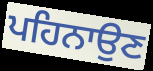
ਪਹਿਨਾਉਣ